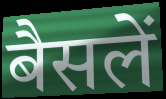
बैसलें